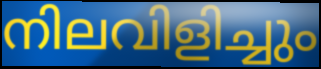
നിലവിളിച്ചും